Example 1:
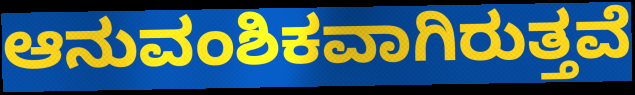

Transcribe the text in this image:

ಆನುವಂಶಿಕವಾಗಿರುತ್ತವೆ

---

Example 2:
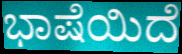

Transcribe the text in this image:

ಭಾಷೆಯಿದೆ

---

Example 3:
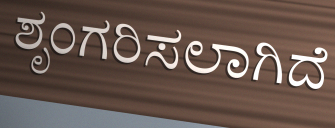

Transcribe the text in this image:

ಶೃಂಗರಿಸಲಾಗಿದೆ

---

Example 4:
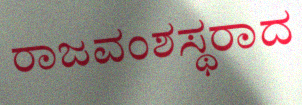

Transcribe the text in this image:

ರಾಜವಂಶಸ್ಥರಾದ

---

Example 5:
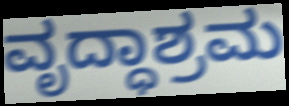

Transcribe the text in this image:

ವೃದ್ಧಾಶ್ರಮ